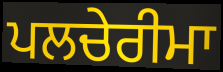
ਪਲਚੇਰੀਮਾ